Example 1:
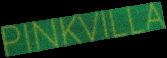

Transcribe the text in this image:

PINKVILLA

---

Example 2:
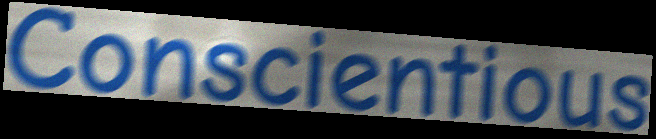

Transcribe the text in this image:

Conscientious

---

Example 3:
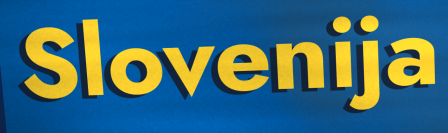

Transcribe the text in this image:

Slovenija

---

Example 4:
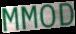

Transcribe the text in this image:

MMOD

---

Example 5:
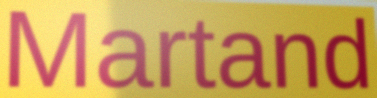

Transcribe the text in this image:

Martand